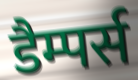
डैम्पर्स